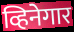
व्हिनेगार